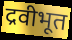
द्रवीभूत